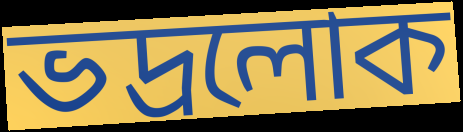
ভদ্ৰলোক